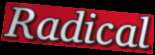
Radical